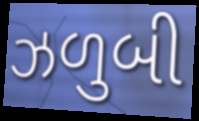
ઝળુબી